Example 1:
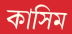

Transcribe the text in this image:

কাসিম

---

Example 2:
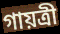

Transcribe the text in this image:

গায়ত্রী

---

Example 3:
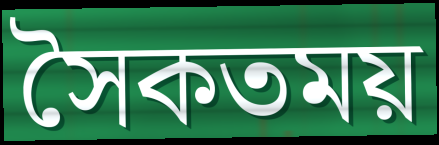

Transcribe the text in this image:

সৈকতময়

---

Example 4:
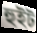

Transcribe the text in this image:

হুইট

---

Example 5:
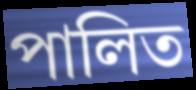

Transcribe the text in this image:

পালিত